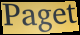
Paget